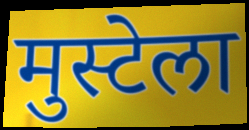
मुस्टेला